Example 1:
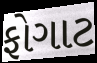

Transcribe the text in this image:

ફોગાટ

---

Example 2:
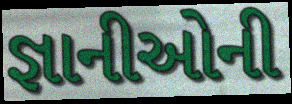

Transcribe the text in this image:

જ્ઞાનીઓની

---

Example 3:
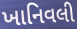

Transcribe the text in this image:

ખાનિવલી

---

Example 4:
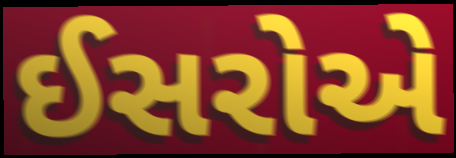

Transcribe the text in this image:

ઈસરોએ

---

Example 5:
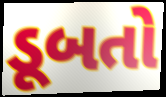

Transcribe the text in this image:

ડૂબતો